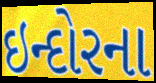
ઇન્દોરના